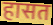
हासत